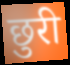
छुरी